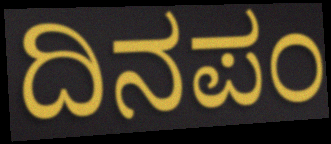
ದಿನಪಂ